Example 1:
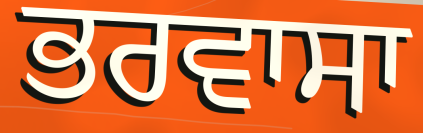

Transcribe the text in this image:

ਭਰਵਾਸਾ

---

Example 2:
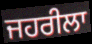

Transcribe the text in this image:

ਜਹਰੀਲਾ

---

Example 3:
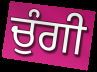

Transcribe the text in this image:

ਚੁੰਗੀ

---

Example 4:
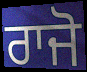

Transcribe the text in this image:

ਰਾਜੋ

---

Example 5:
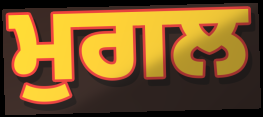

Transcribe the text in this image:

ਮੁਗਲ